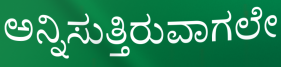
ಅನ್ನಿಸುತ್ತಿರುವಾಗಲೇ